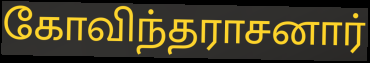
கோவிந்தராசனார்